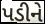
પડીને